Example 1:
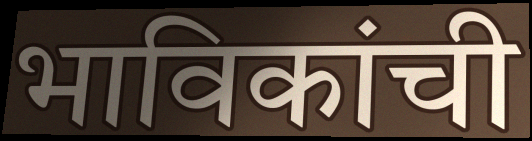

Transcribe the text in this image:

भाविकांची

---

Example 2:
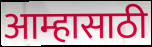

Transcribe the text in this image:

आम्हासाठी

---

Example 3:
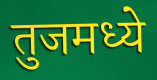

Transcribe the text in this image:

तुजमध्ये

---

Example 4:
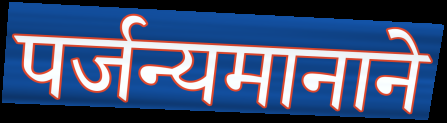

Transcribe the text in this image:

पर्जन्यमानाने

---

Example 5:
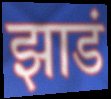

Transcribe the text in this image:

झाडं